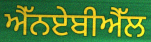
ਐੱਨਏਬੀਐੱਲ